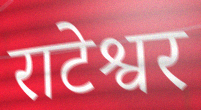
राटेश्वर